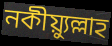
নকীয়্যুল্লাহ